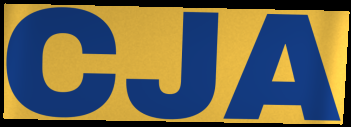
CJA